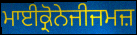
ਮਾਈਕ੍ਰੋਨੇਜੀਜਮਜ਼